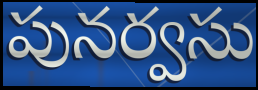
పునర్వసు